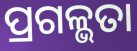
ପ୍ରଗଳ୍ଭତା